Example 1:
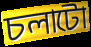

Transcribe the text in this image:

চলাটো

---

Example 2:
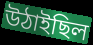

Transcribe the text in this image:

উঠাইছিল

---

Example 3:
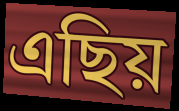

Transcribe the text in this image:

এছিয়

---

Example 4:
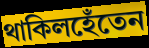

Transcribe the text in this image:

থাকিলহেঁতেন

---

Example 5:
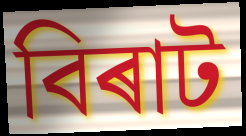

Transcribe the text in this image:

বিৰাট